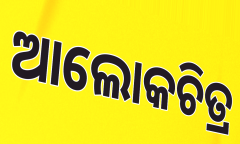
ଆଲୋକଚିତ୍ର